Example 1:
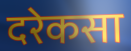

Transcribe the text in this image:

दरेकसा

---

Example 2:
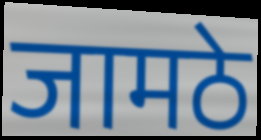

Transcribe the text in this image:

जामठे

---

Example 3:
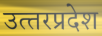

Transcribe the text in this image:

उत्‍तरप्रदेश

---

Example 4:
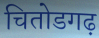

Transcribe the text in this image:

चितोडगढ़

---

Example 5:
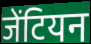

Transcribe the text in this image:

जेंटियन